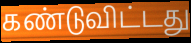
கண்டுவிட்டது